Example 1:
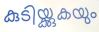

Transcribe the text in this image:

കുടിയ്ക്കുകയും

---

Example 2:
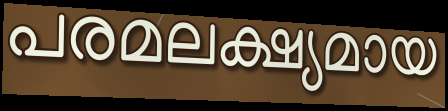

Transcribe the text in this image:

പരമലക്ഷ്യമായ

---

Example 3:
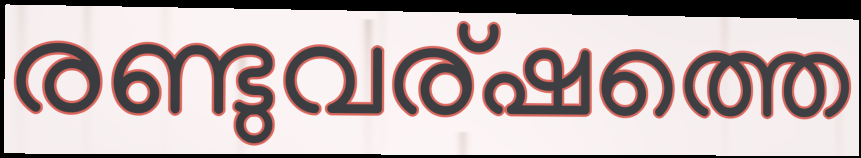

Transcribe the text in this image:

രണ്ടുവര്ഷത്തെ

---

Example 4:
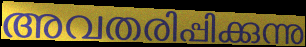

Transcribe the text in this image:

അവതരിപ്പിക്കുന്നു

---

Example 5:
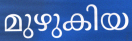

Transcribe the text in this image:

മുഴുകിയ